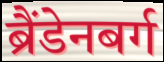
ब्रैंडेनबर्ग